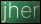
jher